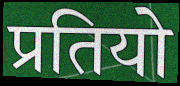
प्रतियो